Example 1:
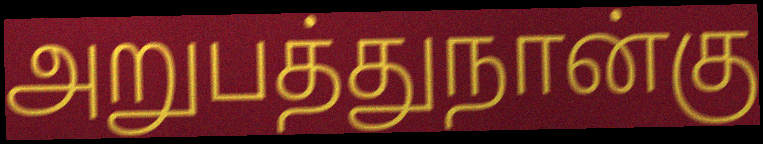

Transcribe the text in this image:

அறுபத்துநான்கு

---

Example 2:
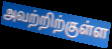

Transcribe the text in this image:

அவற்றிற்குள்ள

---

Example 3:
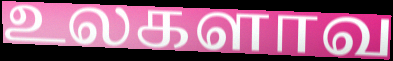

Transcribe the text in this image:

உலகளாவ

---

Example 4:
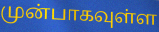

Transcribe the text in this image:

முன்பாகவுள்ள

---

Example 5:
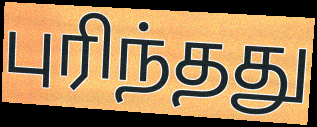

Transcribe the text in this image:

புரிந்தது